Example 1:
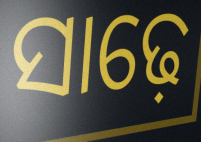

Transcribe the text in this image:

ସାଢ଼େ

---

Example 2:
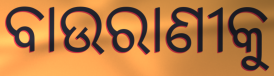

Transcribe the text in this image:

ବାଉରାଣୀକୁ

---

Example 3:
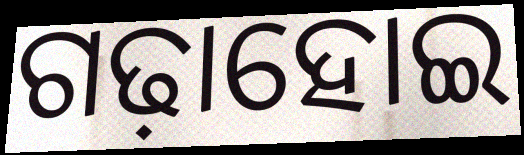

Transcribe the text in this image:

ଗଢ଼ାହୋଇ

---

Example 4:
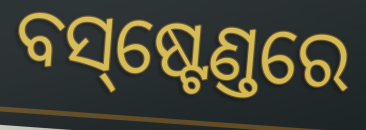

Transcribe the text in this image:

ବସ୍‌ଷ୍ଟେଣ୍ଡରେ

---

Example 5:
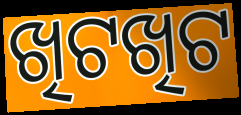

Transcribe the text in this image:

ଖିଟଖିଟ